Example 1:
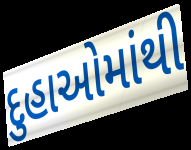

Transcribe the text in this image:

દુહાઓમાંથી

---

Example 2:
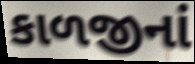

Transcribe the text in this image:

કાળજીનાં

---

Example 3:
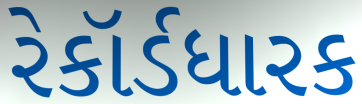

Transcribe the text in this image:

રેકૉર્ડધારક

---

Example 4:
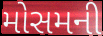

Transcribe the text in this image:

મોસમની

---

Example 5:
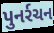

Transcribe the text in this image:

પુનર્રચન